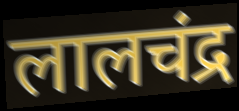
लालचंद्र